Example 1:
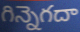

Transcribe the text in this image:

గిన్నెగదా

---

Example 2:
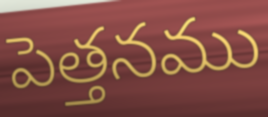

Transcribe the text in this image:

పెత్తనము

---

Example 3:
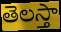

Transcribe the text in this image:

తెలస్తా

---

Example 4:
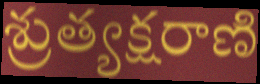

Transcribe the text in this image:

శ్రుత్యక్షరాణి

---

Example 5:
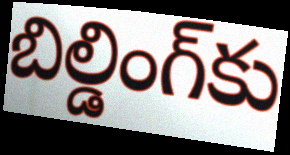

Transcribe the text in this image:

బిల్డింగ్‌కు